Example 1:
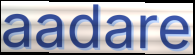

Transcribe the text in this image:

aadare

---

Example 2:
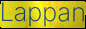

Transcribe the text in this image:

Lappan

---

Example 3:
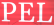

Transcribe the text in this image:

PEL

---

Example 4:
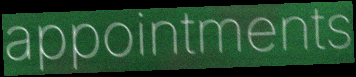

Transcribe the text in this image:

appointments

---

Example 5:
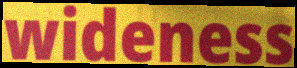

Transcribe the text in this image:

wideness